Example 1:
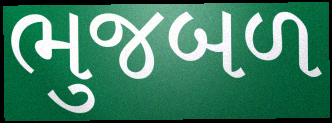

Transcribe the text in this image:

ભુજબળ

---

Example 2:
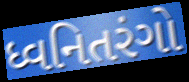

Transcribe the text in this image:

ધ્વનિતરંગો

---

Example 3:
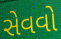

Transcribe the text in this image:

સેવવો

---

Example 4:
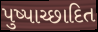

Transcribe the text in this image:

પુષ્પાચ્છાદિત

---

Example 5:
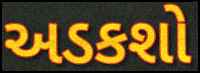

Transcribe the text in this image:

અડકશો